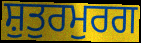
ਸ਼ੁਤੁਰਮੁਰਗ